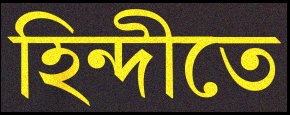
হিন্দীতে